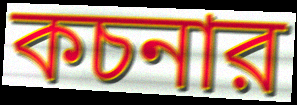
কচনার